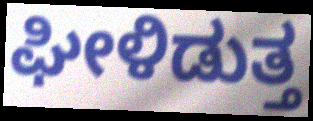
ಘೀಳಿಡುತ್ತ